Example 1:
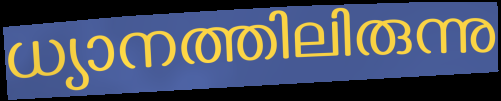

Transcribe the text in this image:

ധ്യാനത്തിലിരുന്നു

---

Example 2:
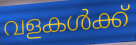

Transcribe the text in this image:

വളകൾക്ക്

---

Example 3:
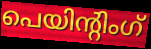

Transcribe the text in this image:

പെയിന്റിംഗ്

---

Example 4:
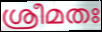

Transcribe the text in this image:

ശ്രീമതഃ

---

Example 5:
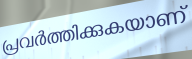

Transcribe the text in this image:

പ്രവർത്തിക്കുകയാണ്